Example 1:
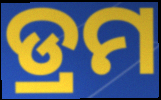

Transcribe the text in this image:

ଡ୍ରମ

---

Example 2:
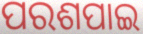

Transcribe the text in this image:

ପରଶପାଇ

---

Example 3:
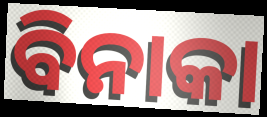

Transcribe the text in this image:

ବିନାକା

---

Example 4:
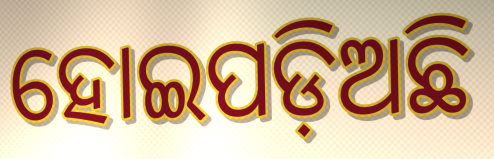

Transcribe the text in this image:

ହୋଇପଡ଼ିଅଛି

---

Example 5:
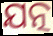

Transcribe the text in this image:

ଯତ୍ନ